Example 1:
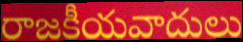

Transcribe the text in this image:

రాజకీయవాదులు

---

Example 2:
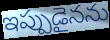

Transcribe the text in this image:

ఇప్పుడైనను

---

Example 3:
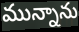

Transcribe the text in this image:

మున్నాను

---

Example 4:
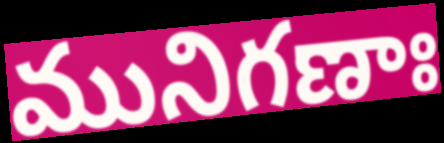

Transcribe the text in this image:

మునిగణాః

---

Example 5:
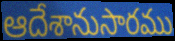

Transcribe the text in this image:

ఆదేశానుసారము